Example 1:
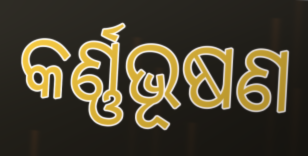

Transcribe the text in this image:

କର୍ଣ୍ଣଭୂଷଣ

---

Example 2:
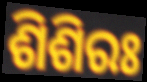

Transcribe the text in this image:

ଶିଶିରଃ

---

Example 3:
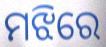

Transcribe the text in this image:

ମଝିରେ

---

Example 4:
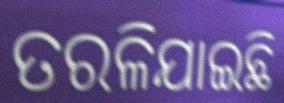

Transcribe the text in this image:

ତରଳିଯାଇଛି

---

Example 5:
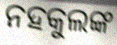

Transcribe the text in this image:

ନହକୁଲଙ୍କ